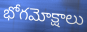
భోగమోక్షాలు